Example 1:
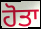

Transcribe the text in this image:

ਹੋਤਾ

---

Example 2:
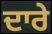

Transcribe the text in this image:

ਦਾਰੇ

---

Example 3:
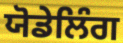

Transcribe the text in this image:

ਯੋਡੇਲਿੰਗ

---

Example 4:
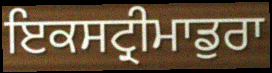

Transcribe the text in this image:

ਇਕਸਟ੍ਰੀਮਾਡੁਰਾ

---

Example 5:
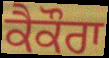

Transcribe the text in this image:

ਕੈਕੌਰਾ